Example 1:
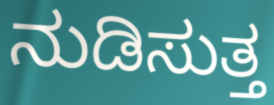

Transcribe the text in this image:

ನುಡಿಸುತ್ತ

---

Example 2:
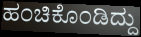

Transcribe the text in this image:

ಹಂಚಿಕೊಂಡಿದ್ದು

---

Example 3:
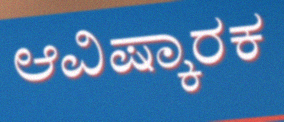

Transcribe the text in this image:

ಆವಿಷ್ಕಾರಕ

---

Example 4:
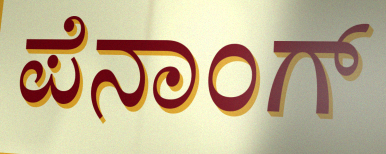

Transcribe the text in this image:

ಪೆನಾಂಗ್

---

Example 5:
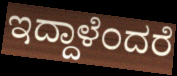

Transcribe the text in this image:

ಇದ್ದಾಳೆಂದರೆ